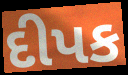
દીપક